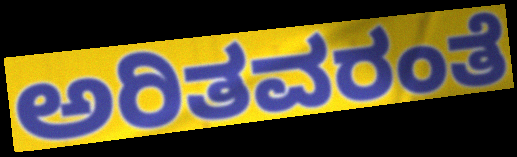
ಅರಿತವರಂತೆ